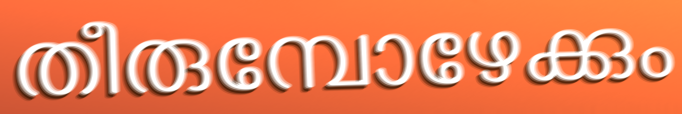
തീരുമ്പോഴേക്കും